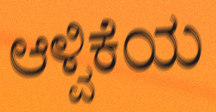
ಆಳ್ವಿಕೆಯ